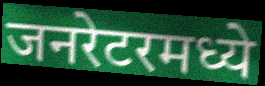
जनरेटरमध्ये